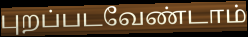
புறப்படவேண்டாம்